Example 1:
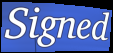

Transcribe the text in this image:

Signed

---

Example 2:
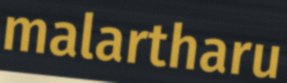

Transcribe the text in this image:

malartharu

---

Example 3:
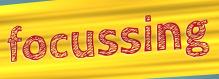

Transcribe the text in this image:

focussing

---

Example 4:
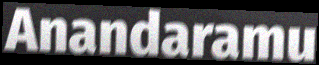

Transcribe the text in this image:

Anandaramu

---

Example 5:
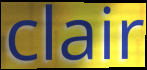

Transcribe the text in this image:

clair